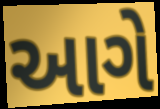
આગે